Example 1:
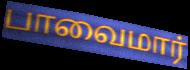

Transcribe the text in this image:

பாவைமார்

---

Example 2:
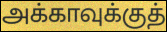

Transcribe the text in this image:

அக்காவுக்குத்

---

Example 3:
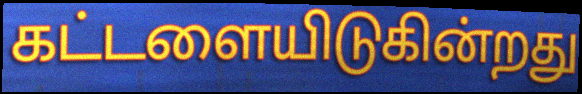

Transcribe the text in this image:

கட்டளையிடுகின்றது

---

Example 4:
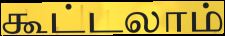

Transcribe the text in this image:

கூட்டலாம்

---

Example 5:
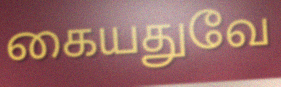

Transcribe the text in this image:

கையதுவே